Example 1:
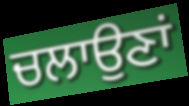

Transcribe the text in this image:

ਚਲਾਉਣਾਂ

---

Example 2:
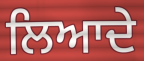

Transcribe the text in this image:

ਲਿਆਦੇ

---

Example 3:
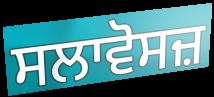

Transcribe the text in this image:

ਸਲਾਵੋਸਜ਼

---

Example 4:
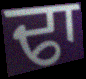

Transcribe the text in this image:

ਢਾ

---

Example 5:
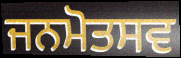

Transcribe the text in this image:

ਜਨਮੋਤਸਵ